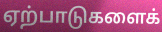
ஏற்பாடுகளைக்